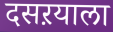
दसऱयाला